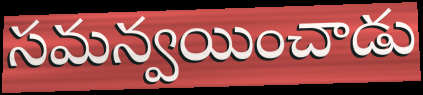
సమన్వయించాడు